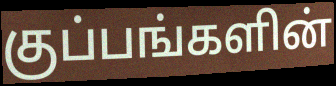
குப்பங்களின்